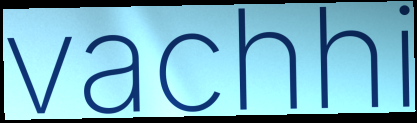
vachhi